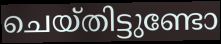
ചെയ്തിട്ടുണ്ടോ